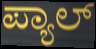
ಪ್ಯಾಲ್